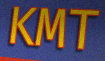
KMT